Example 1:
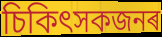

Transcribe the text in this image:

চিকিৎসকজনৰ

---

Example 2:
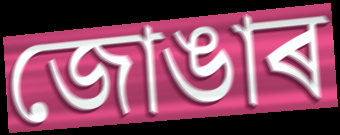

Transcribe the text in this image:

জোঙাৰ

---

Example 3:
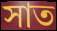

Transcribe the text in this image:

সাত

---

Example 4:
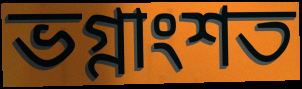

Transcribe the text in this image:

ভগ্নাংশত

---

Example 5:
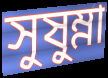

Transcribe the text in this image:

সুষুম্না